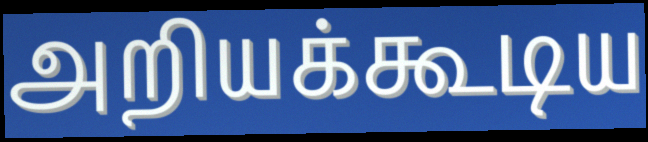
அறியக்கூடிய